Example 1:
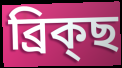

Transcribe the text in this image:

ব্ৰিক্ছ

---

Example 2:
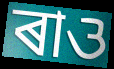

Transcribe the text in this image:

ৰাও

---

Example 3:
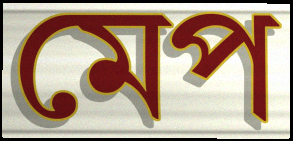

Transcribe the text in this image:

মেপ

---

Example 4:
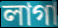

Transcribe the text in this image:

লাগা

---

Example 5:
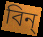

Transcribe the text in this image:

বিন্